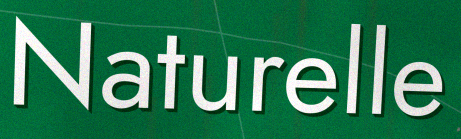
Naturelle